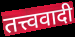
तत्त्ववादी